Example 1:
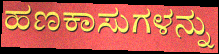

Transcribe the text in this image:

ಹಣಕಾಸುಗಳನ್ನು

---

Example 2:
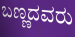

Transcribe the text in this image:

ಬಣ್ಣದವರು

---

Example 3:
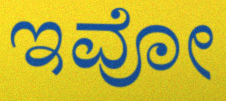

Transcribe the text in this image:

ಇವೋ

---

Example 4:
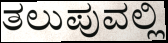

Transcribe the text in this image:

ತಲುಪುವಲ್ಲಿ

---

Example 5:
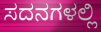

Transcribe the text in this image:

ಸದನಗಳಲ್ಲಿ